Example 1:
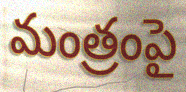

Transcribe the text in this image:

మంత్రంపై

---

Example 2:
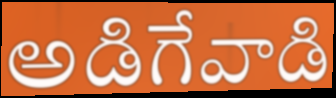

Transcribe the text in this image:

అడిగేవాడి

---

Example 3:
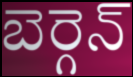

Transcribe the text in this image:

బెర్గెన్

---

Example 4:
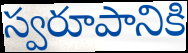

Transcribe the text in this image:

స్వరూపానికి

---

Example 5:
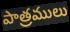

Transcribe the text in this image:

పాత్రములు